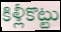
కిళ్లీకొట్టు